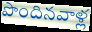
పొందినవాళ్ల